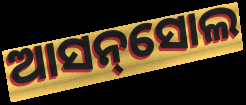
ଆସନ୍‌ସୋଲ